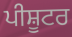
ਪੀਸ਼ੂਟਰ